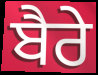
ਬੈਰੇ